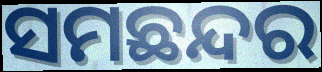
ସମଛନ୍ଦର